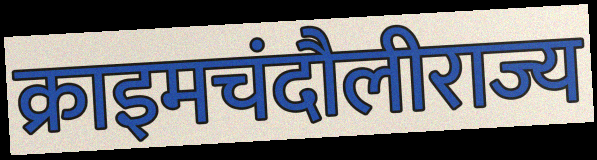
क्राइमचंदौलीराज्य